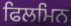
ਫਿਲਮਿਨ